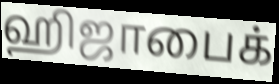
ஹிஜாபைக்